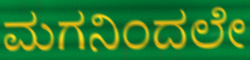
ಮಗನಿಂದಲೇ